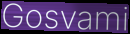
Gosvami